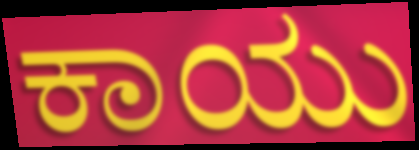
ಕಾಯು